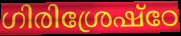
ഗിരിശ്രേഷ്ഠേ